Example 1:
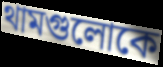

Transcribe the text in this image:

থামগুলোকে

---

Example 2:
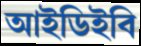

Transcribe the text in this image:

আইডিইবি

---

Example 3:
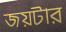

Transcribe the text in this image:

জয়টার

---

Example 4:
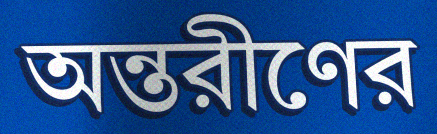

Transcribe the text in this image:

অন্তরীণের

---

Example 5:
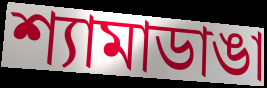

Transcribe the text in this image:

শ্যামাডাঙা